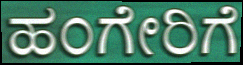
ಹಂಗೇರಿಗೆ